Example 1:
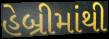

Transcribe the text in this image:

હેબ્રીમાંથી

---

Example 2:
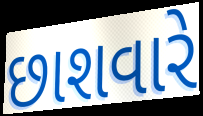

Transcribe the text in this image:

છાશવારે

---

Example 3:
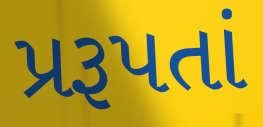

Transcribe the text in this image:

પ્રરૂપતાં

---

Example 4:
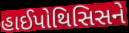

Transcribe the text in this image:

હાઈપોથિસિસને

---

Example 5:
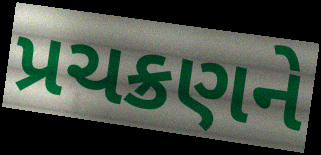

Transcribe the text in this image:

પ્રચક્રણને